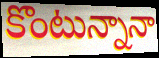
కొంటున్నానా